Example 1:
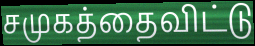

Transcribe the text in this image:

சமுகத்தைவிட்டு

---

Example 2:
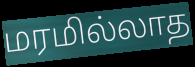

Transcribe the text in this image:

மரமில்லாத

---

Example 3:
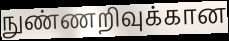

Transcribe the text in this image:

நுண்ணறிவுக்கான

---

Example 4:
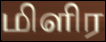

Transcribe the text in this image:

மிளிர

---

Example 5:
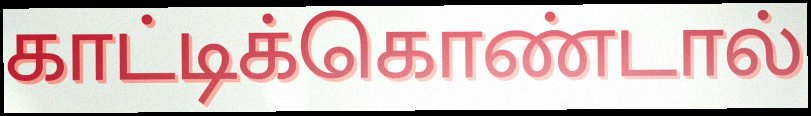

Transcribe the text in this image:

காட்டிக்கொண்டால்